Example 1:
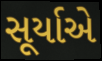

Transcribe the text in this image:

સૂર્યાએ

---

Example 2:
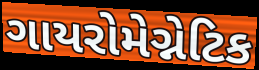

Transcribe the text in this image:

ગાયરોમેગ્નેટિક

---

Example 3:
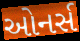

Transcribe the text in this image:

ઓનર્સ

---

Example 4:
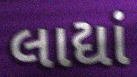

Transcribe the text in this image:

લાદ્યાં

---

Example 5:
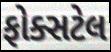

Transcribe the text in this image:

ફોક્સટેલ